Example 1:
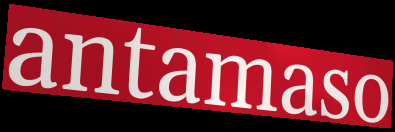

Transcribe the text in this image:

antamaso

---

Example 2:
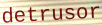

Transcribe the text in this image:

detrusor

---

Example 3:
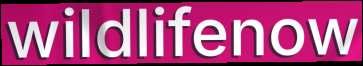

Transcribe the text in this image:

wildlifenow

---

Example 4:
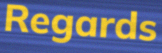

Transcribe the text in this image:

Regards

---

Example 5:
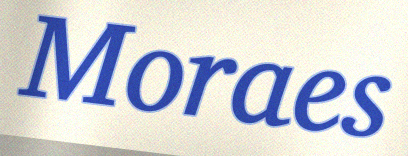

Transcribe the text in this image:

Moraes